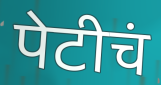
पेटीचं